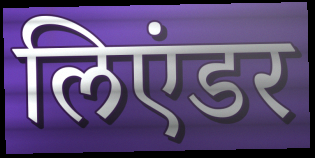
लिएंडर